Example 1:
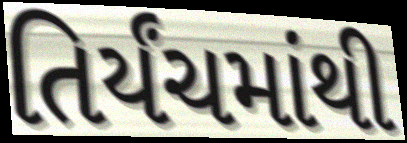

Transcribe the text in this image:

તિર્યંચમાંથી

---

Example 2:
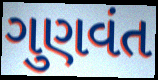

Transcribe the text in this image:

ગુણવંત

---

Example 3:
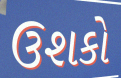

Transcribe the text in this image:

ઉશકો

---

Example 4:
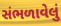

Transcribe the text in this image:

સંભળાવેલું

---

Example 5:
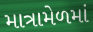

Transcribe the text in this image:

માત્રામેળમાં